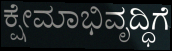
ಕ್ಷೇಮಾಭಿವೃದ್ಧಿಗೆ